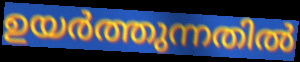
ഉയർത്തുന്നതിൽ